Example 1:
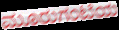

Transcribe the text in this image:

ಮೂರುಗಂಟೆಯ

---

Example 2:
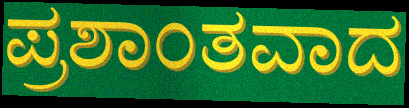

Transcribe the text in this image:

ಪ್ರಶಾಂತವಾದ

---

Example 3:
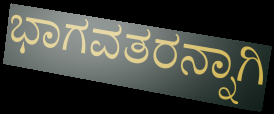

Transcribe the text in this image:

ಭಾಗವತರನ್ನಾಗಿ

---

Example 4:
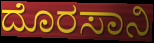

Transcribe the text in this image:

ದೊರಸಾನಿ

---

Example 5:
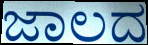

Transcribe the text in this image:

ಜಾಲದ